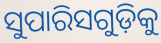
ସୁପାରିସଗୁଡ଼ିକୁ